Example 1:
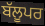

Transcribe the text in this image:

ਬੱਲੂਪਰ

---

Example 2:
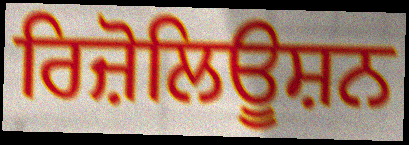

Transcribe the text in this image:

ਰਿਜ਼ੋਲਿਊਸ਼ਨ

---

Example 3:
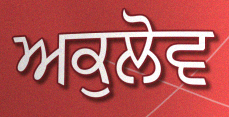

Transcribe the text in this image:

ਅਕੁਲੋਵ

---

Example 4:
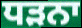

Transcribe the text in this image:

ਧੜਨਾ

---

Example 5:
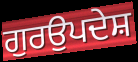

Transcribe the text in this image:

ਗੁਰਉਪਦੇਸ਼